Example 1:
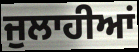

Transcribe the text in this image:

ਜੁਲਾਹੀਆਂ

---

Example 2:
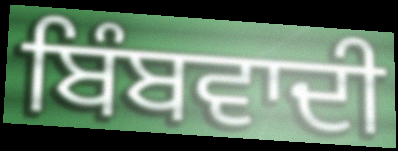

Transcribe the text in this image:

ਬਿੰਬਵਾਦੀ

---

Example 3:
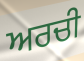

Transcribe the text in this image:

ਅਰਚੀ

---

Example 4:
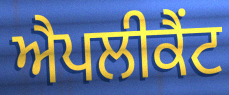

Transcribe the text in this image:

ਐਪਲੀਕੈਂਟ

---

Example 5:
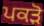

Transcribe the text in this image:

ਪਕੜੋ